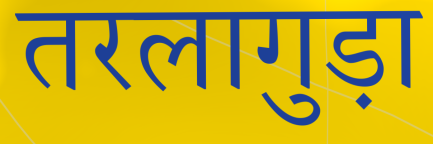
तरलागुड़ा